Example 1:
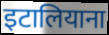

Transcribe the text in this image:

इटालियाना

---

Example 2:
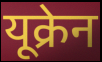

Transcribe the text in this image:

यूक्रेन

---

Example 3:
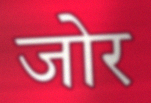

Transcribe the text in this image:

जोर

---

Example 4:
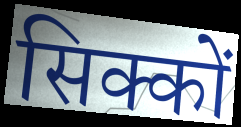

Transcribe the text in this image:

सिक्‍कों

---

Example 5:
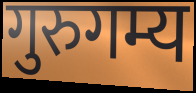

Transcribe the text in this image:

गुरुगम्य